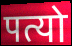
पत्यो